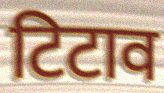
टिटाव